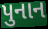
પુનાન